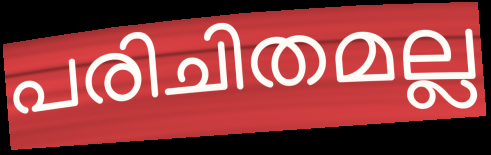
പരിചിതമല്ല